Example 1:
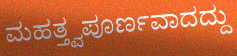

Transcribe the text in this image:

ಮಹತ್ತ್ವಪೂರ್ಣವಾದದ್ದು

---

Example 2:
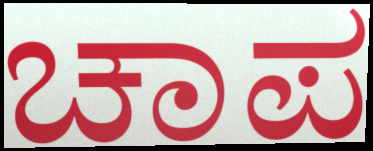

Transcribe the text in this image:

ಚಾಪ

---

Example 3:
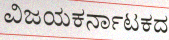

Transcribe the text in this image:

ವಿಜಯಕರ್ನಾಟಕದ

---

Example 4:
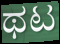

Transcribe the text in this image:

ಥಟ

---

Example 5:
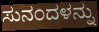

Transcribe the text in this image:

ಸುನಂದಳನ್ನು